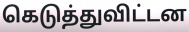
கெடுத்துவிட்டன